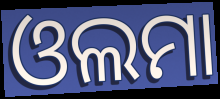
ଓଲମା